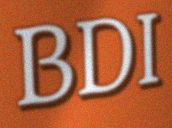
BDI